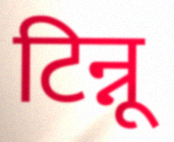
टिन्नू